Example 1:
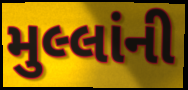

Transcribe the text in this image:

મુલ્લાંની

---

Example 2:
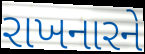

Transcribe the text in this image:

રાખનારને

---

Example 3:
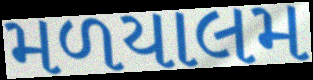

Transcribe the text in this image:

મળયાલમ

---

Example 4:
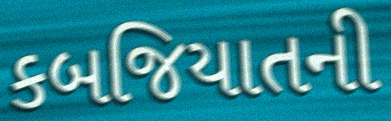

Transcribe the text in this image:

કબજિયાતની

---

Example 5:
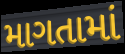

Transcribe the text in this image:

માગતામાં